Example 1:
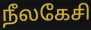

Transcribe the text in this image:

நீலகேசி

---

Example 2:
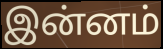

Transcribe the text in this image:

இன்னம்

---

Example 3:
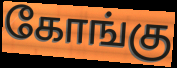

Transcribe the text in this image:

கோங்கு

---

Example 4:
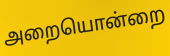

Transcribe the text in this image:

அறையொன்றை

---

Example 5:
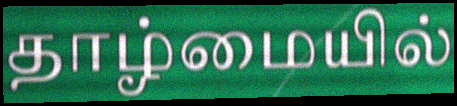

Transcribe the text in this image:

தாழ்மையில்